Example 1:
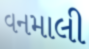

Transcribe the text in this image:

વનમાલી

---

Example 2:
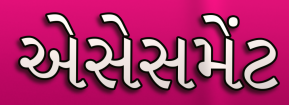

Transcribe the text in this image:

એસેસમેંટ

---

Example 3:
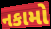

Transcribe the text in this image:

નકામો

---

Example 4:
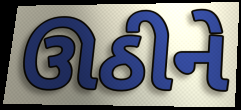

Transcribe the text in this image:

ઊઠીને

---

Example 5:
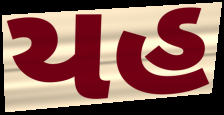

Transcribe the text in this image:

યહ